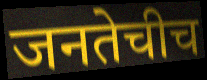
जनतेचीच